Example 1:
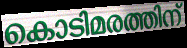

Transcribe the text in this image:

കൊടിമരത്തിന്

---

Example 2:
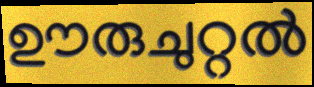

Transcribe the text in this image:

ഊരുചുറ്റൽ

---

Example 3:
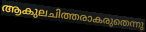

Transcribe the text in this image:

ആകുലചിത്തരാകരുതെന്നു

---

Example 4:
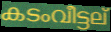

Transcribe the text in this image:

കടംവീട്ടല്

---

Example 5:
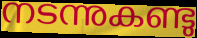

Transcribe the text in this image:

നടന്നുകണ്ടു